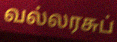
வல்லரசுப்